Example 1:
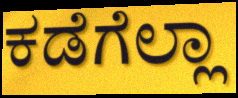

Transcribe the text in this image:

ಕಡೆಗೆಲ್ಲಾ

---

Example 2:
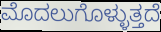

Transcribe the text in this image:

ಮೊದಲುಗೊಳ್ಳುತ್ತದೆ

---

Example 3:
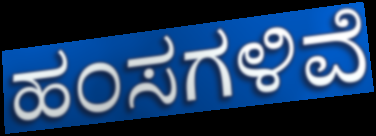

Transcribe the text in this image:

ಹಂಸಗಳಿವೆ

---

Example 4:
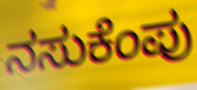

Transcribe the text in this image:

ನಸುಕೆಂಪು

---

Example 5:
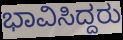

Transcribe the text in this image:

ಭಾವಿಸಿದ್ದರು